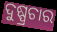
ଦୁଷ୍ପ୍ରଚାର